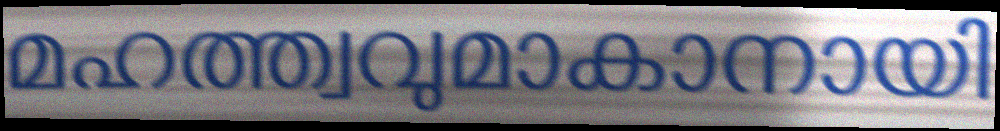
മഹത്ത്വവുമാകാനായി